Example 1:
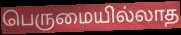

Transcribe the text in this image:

பெருமையில்லாத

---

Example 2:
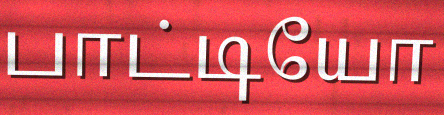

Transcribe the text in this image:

பாட்டியோ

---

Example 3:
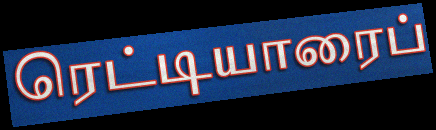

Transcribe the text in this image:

ரெட்டியாரைப்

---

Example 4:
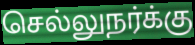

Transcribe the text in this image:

செல்லுநர்க்கு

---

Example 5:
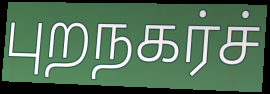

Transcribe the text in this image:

புறநகர்ச்